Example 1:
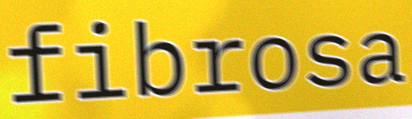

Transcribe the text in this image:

fibrosa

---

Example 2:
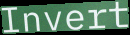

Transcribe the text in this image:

Invert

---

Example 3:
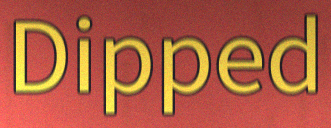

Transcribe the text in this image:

Dipped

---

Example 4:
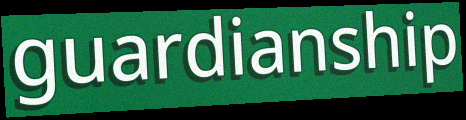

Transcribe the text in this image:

guardianship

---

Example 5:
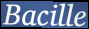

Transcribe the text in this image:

Bacille